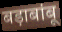
बड़ाबांबू